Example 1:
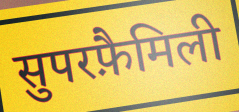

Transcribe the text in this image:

सुपरफ़ैमिली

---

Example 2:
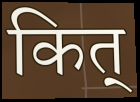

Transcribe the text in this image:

कित्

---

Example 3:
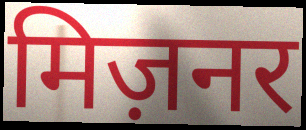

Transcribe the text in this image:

मिज़नर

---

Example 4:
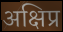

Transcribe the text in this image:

अक्षिप्र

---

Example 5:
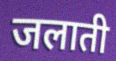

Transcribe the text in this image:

जलाती